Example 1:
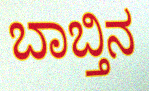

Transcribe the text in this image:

ಬಾಬ್ತಿನ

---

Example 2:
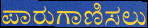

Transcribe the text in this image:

ಪಾರುಗಾಣಿಸಲು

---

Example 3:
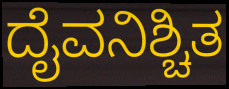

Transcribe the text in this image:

ದೈವನಿಶ್ಚಿತ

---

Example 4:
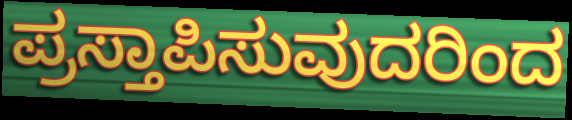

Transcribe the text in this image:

ಪ್ರಸ್ತಾಪಿಸುವುದರಿಂದ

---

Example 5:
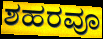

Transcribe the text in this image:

ಶಹರವೂ